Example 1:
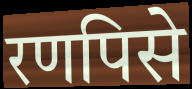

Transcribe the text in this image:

रणपिसे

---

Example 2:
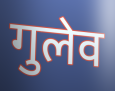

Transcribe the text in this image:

गुलेव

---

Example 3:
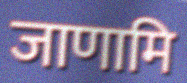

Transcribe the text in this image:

जाणामि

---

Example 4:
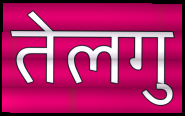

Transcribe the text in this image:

तेलगु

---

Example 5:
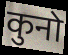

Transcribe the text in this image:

कुनो